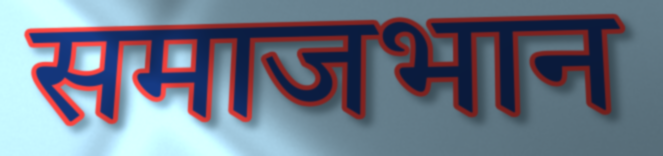
समाजभान